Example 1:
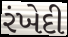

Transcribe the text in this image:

રંખેદી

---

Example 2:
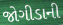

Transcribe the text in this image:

જોગીડાની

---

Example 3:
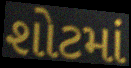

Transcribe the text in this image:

શોટમાં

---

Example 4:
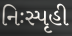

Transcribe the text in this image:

નિઃસ્પૃહી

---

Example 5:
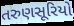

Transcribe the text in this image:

તરુણસૂરિયો